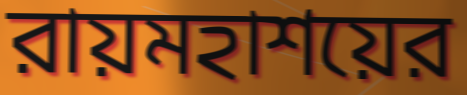
রায়মহাশয়ের